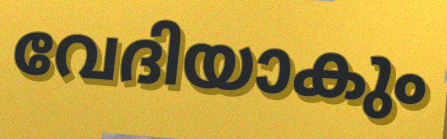
വേദിയാകും